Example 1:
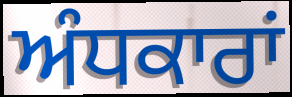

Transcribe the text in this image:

ਅੰਧਕਾਰਾਂ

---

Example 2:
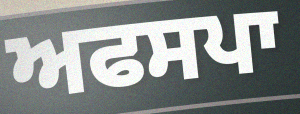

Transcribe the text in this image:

ਅਫਸਪਾ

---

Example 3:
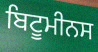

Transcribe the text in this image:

ਬਿਟੂਮੀਨਸ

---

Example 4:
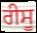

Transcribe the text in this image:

ਰੀਸੂ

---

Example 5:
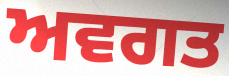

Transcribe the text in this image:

ਅਵਗਤ